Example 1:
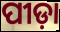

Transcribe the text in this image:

ପୀଡ଼ା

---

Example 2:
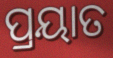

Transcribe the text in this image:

ପ୍ରୟାତ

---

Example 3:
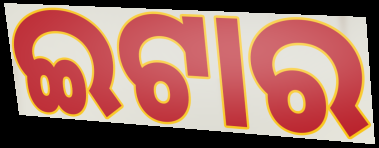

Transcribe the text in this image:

ଇଟାର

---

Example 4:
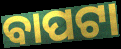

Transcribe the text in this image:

ବାପଟା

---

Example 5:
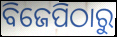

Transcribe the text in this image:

ବିଜେପିଠାରୁ